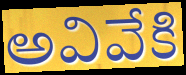
అవివేకి